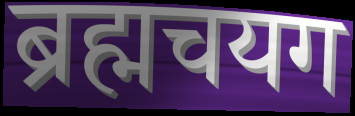
ब्रह्मचयग